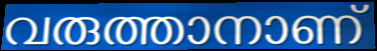
വരുത്താനാണ്